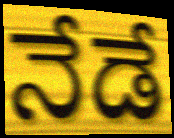
నేడే